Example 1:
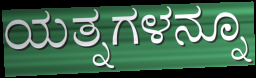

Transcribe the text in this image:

ಯತ್ನಗಳನ್ನೂ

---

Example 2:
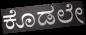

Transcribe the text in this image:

ಕೊಡಲೇ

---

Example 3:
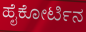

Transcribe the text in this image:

ಹೈಕೋರ್ಟಿನ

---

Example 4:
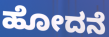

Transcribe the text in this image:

ಹೋದನೆ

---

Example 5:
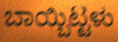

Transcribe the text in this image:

ಬಾಯ್ಬಿಟ್ಟಳು